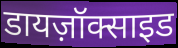
डायज़ॉक्साइड